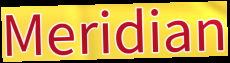
Meridian